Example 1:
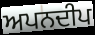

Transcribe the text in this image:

ਅਪਨਦੀਪ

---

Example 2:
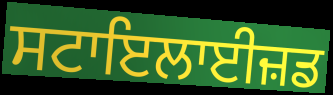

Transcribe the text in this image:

ਸਟਾਇਲਾਈਜ਼ਡ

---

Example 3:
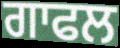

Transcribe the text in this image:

ਗਾਫਲ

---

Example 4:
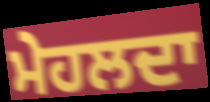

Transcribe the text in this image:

ਮੇਹਲਦਾ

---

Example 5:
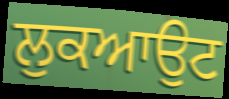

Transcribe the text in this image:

ਲੁਕਆਉਟ